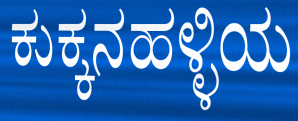
ಕುಕ್ಕನಹಳ್ಳಿಯ